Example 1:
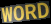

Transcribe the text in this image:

WORD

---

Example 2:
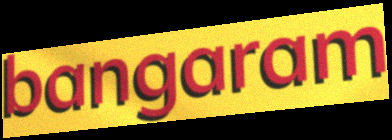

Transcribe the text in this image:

bangaram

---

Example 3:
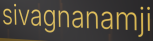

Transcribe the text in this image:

sivagnanamji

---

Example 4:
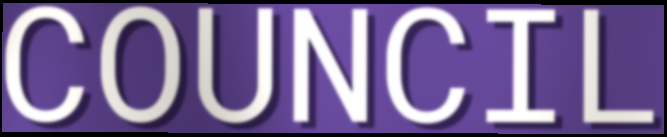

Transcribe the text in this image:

COUNCIL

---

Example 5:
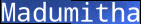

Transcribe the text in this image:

Madumitha